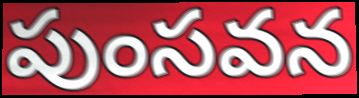
పుంసవన